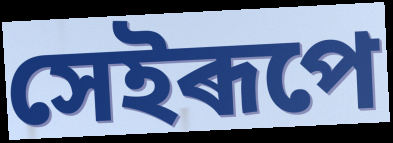
সেইৰূপে